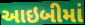
આઇબીમાં